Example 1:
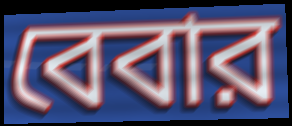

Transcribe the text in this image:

বেবার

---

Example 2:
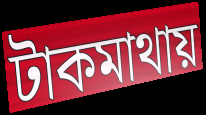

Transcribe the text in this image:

টাকমাথায়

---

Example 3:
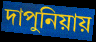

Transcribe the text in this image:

দাপুনিয়ায়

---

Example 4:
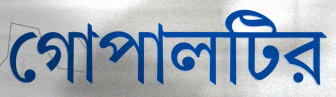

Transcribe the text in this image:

গোপালটির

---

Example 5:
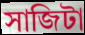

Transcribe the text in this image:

সাজিটা